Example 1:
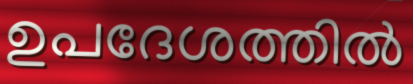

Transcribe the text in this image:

ഉപദേശത്തിൽ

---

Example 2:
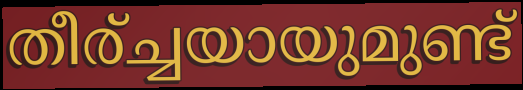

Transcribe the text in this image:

തീര്ച്ചയായുമുണ്ട്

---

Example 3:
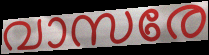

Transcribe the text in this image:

വാസരേ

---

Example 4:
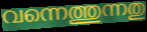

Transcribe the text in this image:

വന്നെത്തുന്നതു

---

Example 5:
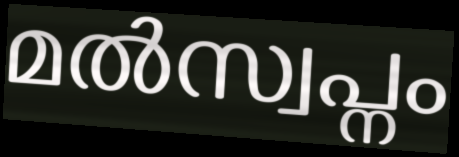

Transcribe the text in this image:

മൽസ്വപ്നം